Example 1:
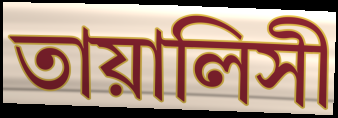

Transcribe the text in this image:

তায়ালিসী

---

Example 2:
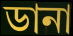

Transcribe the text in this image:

ডানা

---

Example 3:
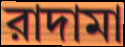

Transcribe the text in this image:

রাদামা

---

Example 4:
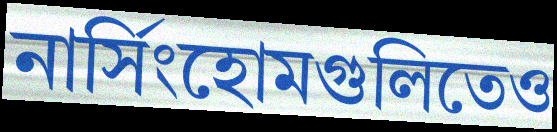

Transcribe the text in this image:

নার্সিংহোমগুলিতেও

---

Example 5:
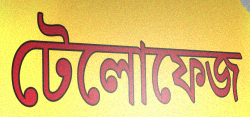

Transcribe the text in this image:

টেলোফেজ